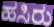
ಹಸಿರು